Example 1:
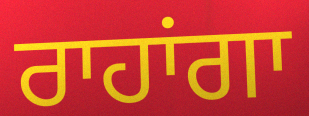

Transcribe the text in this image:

ਰਾਹਾਂਗਾ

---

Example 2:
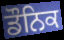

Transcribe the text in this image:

ਡੌਨਿਕ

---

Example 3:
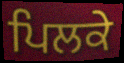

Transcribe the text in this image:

ਪਿਲਕੇ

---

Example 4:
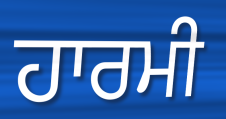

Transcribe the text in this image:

ਹਾਰਮੀ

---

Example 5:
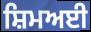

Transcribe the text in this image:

ਸ਼ਿਮਅਈ